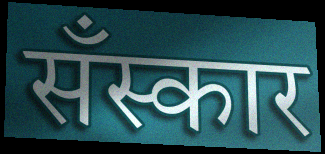
सँस्कार